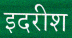
इदरीश